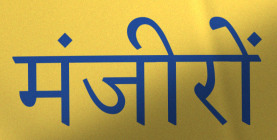
मंजीरों